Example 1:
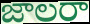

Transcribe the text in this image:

జాలరా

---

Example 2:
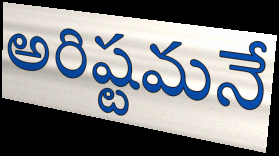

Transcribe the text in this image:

అరిష్టమనే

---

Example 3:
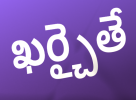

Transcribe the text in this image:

ఖర్చైతే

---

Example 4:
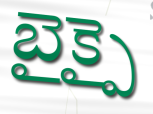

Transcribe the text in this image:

బైక్పై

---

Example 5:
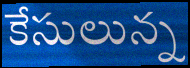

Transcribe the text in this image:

కేసులున్న